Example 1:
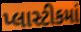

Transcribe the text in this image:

પ્લાસ્ટીકમાં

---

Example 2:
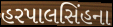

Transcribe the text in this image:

હરપાલસિંહના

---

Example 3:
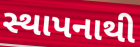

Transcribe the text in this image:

સ્થાપનાથી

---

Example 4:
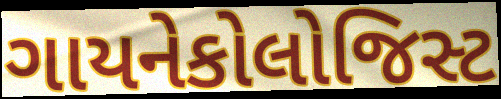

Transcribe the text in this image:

ગાયનેકોલોજિસ્ટ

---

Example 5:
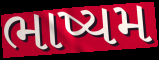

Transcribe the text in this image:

ભાષ્યમ